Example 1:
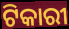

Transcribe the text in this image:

ଟିକାରୀ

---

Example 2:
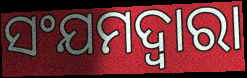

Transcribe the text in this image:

ସଂଯମଦ୍ୱାରା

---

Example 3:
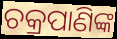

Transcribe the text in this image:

ଚକ୍ରପାଣିଙ୍କ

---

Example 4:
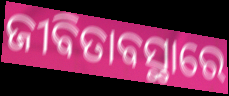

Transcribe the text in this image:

ଜୀବିତାବସ୍ଥାରେ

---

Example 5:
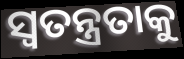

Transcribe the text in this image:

ସ୍ୱତନ୍ତ୍ରତାକୁ